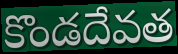
కొండదేవత